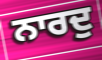
ਨਾਰਦੁ